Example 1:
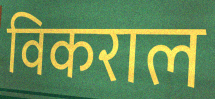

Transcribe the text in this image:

विकराल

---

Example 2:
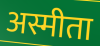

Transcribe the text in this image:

अस्मीता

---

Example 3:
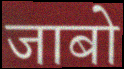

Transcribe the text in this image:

जाबो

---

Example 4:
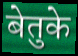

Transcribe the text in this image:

बेतुके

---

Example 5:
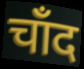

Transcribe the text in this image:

चाँद